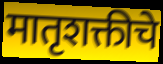
मातृशक्तीचे